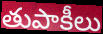
తుపాకీలు